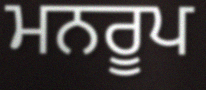
ਮਨਰੂਪ